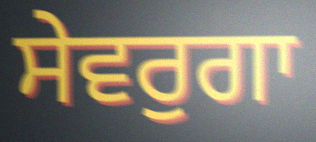
ਸੇਵਰੁਗਾ